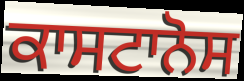
ਕਾਸਟਾਨੋਸ